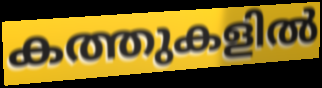
കത്തുകളിൽ